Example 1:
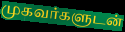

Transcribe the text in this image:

முகவர்களுடன்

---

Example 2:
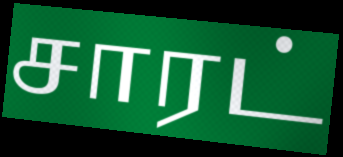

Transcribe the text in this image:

சாரட்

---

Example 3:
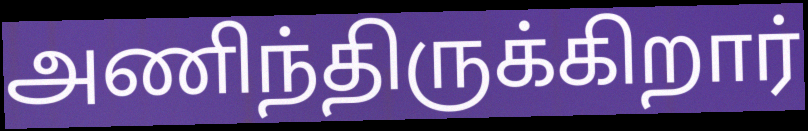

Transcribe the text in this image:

அணிந்திருக்கிறார்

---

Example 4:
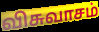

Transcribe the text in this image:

விசுவாசம்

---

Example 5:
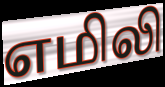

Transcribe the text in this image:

எமிலி